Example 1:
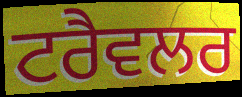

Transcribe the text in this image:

ਟਰੈਵਲਰ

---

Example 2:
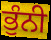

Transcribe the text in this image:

ਭੁੰਨੀ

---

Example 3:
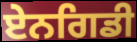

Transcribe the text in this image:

ਏਨਗਿਡੀ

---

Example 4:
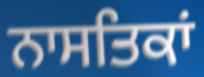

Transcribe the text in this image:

ਨਾਸਤਿਕਾਂ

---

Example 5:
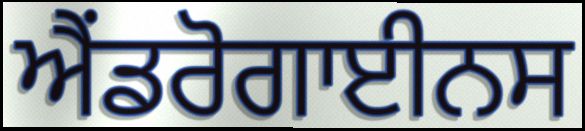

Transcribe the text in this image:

ਐਂਡਰੋਗਾਈਨਸ